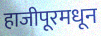
हाजीपूरमधून